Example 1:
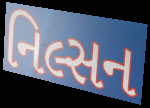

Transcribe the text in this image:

નિલ્સન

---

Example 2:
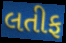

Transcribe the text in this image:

લતીફ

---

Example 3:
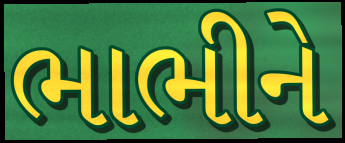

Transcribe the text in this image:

ભાભીને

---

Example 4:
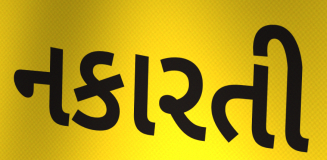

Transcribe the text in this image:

નકારતી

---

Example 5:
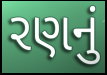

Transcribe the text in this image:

રણનું